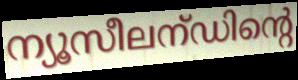
ന്യൂസീലന്ഡിന്റെ